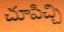
చూపిచ్చి